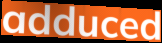
adduced